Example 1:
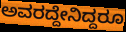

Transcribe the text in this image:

ಅವರದ್ದೇನಿದ್ದರೂ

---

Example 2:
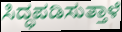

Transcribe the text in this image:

ಸಿದ್ಧಪಡಿಸುತ್ತಾಳೆ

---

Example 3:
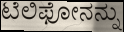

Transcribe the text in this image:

ಟೆಲಿಫೋನನ್ನು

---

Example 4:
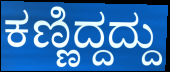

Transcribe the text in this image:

ಕಣ್ಣಿದ್ದದ್ದು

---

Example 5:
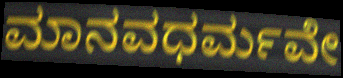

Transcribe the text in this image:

ಮಾನವಧರ್ಮವೇ